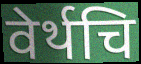
वेर्थचि